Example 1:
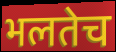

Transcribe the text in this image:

भलतेच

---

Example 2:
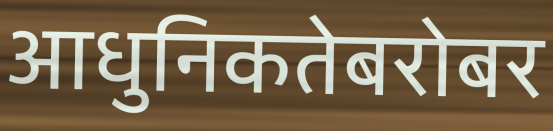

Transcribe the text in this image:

आधुनिकतेबरोबर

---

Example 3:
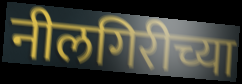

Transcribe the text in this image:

नीलगिरीच्या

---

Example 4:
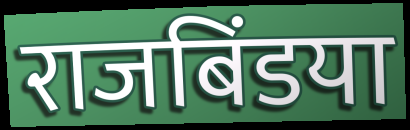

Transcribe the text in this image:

राजबिंडया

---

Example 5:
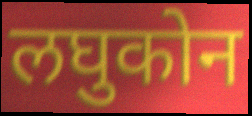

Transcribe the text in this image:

लघुकोन